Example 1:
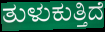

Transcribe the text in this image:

ತುಳುಕುತ್ತಿದೆ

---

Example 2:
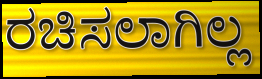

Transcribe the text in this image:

ರಚಿಸಲಾಗಿಲ್ಲ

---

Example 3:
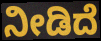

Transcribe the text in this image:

ನೀಡಿದೆ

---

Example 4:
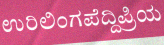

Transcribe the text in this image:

ಉರಿಲಿಂಗಪೆದ್ದಿಪ್ರಿಯ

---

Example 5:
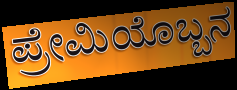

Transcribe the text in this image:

ಪ್ರೇಮಿಯೊಬ್ಬನ